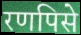
रणपिसे